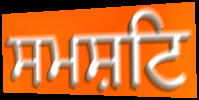
ਸਮਸ਼ਟਿ